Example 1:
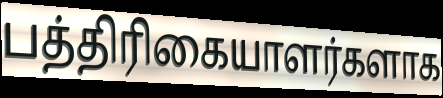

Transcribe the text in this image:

பத்திரிகையாளர்களாக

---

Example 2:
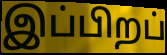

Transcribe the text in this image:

இப்பிறப்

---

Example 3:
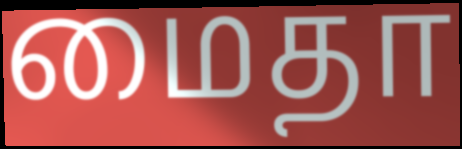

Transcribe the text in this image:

மைதா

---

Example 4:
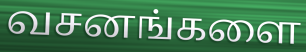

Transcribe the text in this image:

வசனங்களை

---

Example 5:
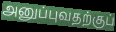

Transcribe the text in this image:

அனுப்புவதற்குப்